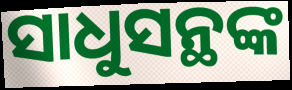
ସାଧୁସନ୍ଥଙ୍କ